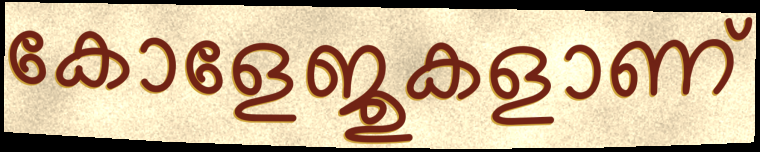
കോളേജുകളാണ്